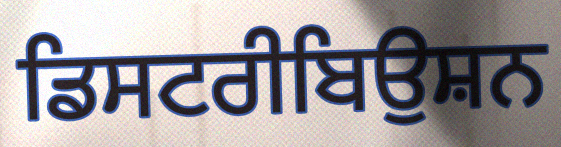
ਡਿਸਟਰੀਬਿਉਸ਼ਨ